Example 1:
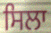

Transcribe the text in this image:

ਸਿਲਾ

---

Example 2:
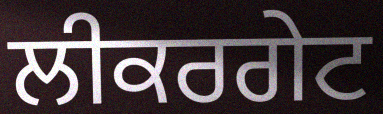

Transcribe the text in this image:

ਲੀਕਰਗੇਟ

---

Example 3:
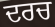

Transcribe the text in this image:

ਦਰਚ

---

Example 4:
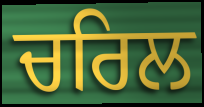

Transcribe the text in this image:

ਚਰਿਲ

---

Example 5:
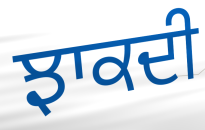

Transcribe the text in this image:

ਝਾਕਦੀ